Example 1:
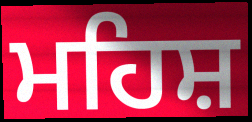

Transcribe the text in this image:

ਮਹਿਸ਼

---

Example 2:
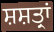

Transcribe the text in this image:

ਸ਼ਸ਼ਤ੍ਰਾਂ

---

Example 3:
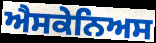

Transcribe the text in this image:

ਐਸਕੇਨਿਅਸ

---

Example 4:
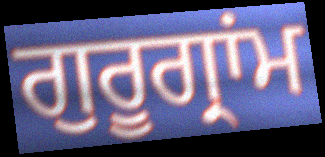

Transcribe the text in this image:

ਗੁਰੂਗ੍ਰਾਂਮ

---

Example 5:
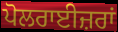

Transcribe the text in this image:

ਪੋਲਰਾਈਜ਼ਰਾਂ